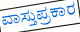
ವಾಸ್ತುಪ್ರಕಾರ